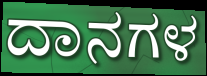
ದಾನಗಳ